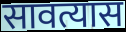
सावत्यास